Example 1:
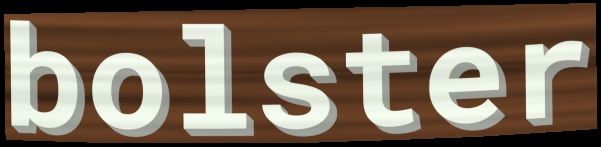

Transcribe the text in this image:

bolster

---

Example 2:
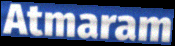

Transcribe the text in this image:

Atmaram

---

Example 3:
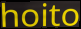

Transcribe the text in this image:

hoito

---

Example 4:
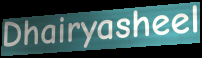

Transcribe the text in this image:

Dhairyasheel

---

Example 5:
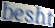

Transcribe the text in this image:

besht